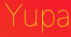
Yupa